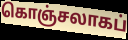
கொஞ்சலாகப்